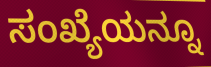
ಸಂಖ್ಯೆಯನ್ನೂ